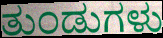
ತುಂಡುಗಳು